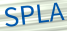
SPLA